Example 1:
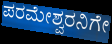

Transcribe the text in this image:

ಪರಮೇಶ್ವರನಿಗೇ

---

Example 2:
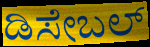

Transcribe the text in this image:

ಡಿಸೇಬಲ್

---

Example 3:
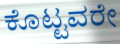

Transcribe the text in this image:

ಕೊಟ್ಟವರೇ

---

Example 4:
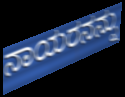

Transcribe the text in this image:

ನಾಯರನನ್ನು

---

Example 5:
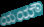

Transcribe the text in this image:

ಯಯೌ